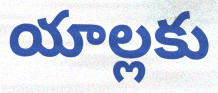
యాల్లకు